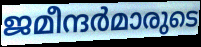
ജമീന്ദർമാരുടെ